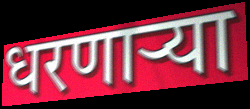
धरणाऱ्या